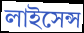
লাইসেন্স